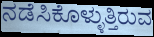
ನಡೆಸಿಕೊಳ್ಳುತ್ತಿರುವ